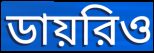
ডায়রিও